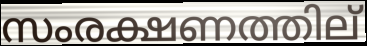
സംരക്ഷണത്തില്